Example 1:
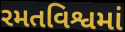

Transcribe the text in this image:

રમતવિશ્વમાં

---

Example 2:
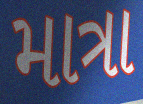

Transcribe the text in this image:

માત્રા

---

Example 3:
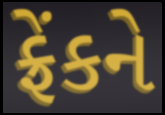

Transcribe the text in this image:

ફ્રેંકને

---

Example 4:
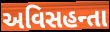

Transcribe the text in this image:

અવિસહન્તા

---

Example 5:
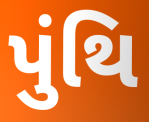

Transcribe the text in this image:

પુંથિ